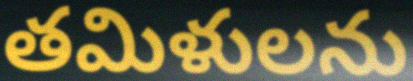
తమిళులను